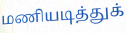
மணியடித்துக்